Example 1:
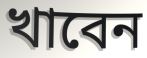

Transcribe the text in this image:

খাবেন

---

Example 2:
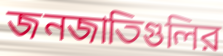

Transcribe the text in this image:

জনজাতিগুলির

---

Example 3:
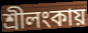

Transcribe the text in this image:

শ্রীলংকায়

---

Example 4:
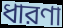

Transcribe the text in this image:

ধারণা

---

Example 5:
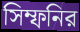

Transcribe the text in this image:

সিম্ফনির